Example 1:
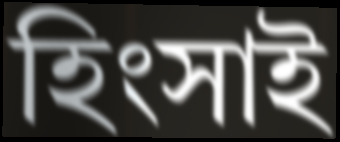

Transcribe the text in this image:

হিংসাই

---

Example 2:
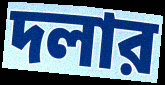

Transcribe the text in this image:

দলার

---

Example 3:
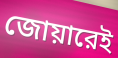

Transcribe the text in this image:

জোয়ারেই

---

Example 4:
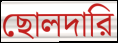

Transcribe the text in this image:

ছোলদারি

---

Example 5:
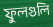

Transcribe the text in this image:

ফুলগুলি